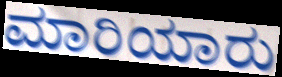
ಮಾರಿಯಾರು